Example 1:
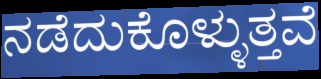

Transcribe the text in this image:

ನಡೆದುಕೊಳ್ಳುತ್ತವೆ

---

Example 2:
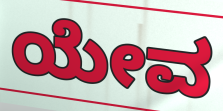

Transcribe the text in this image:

ಯೇವ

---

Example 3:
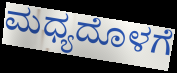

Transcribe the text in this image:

ಮಧ್ಯದೊಳಗೆ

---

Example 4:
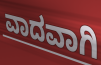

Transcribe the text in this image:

ವಾದವಾಗಿ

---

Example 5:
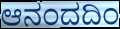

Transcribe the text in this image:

ಆನಂದದಿಂ